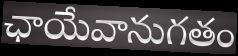
ఛాయేవానుగతం